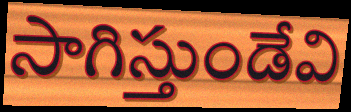
సాగిస్తుండేవి